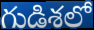
గుడిశలో